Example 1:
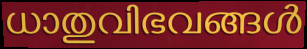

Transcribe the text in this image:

ധാതുവിഭവങ്ങൾ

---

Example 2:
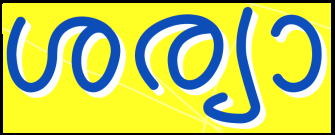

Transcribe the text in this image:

ശര്യാ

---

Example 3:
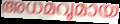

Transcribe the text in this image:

അധമവുമായ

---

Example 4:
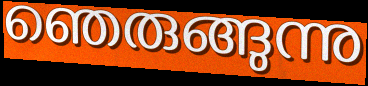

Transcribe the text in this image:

ഞെരുങ്ങുന്നു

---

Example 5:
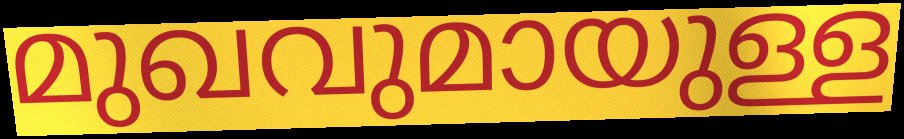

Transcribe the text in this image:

മുഖവുമായുള്ള